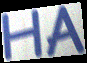
HA